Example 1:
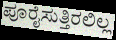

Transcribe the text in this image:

ಪೂರೈಸುತ್ತಿರಲಿಲ್ಲ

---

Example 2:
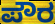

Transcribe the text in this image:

ಪೌರ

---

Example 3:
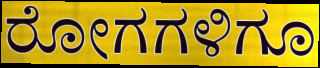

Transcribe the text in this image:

ರೋಗಗಳಿಗೂ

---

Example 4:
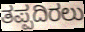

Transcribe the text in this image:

ತಪ್ಪದಿರಲು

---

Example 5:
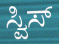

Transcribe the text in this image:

ಸ್ವಿಸ್